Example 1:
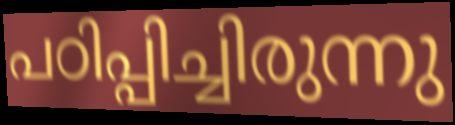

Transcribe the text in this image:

പഠിപ്പിച്ചിരുന്നു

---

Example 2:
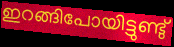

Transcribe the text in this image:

ഇറങ്ങിപോയിട്ടുണ്ടു്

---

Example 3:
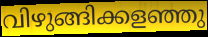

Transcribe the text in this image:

വിഴുങ്ങിക്കളഞ്ഞു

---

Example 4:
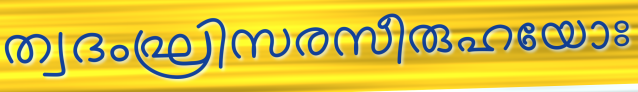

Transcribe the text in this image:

ത്വദംഘ്രിസരസീരുഹയോഃ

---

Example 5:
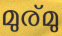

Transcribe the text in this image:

മുര്മു